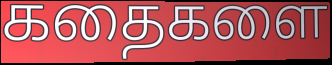
கதைகளை